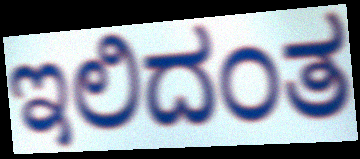
ಇಲಿದಂತ